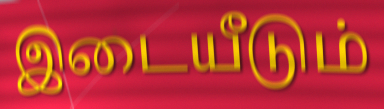
இடையீடும்